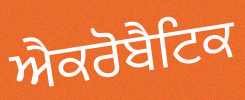
ਐਕਰੋਬੈਟਿਕ